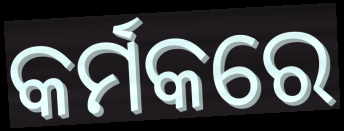
କର୍ମକରେ